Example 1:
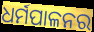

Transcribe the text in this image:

ଧର୍ମପାଳନର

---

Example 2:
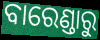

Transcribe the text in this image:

ବାରେଣ୍ଡାରୁ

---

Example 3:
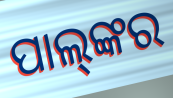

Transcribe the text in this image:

ପାଲ୍‍ଙ୍କର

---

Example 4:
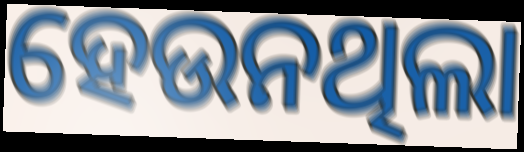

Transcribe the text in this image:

ହେଉନଥିଲା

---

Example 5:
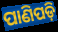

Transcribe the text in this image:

ପାଣିପଡ଼ି